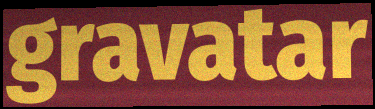
gravatar